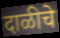
दाळीचे